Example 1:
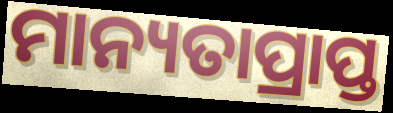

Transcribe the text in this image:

ମାନ୍ୟତାପ୍ରାପ୍ତ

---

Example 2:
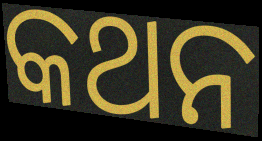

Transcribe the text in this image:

କଥନ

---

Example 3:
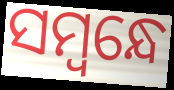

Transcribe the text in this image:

ସମ୍ବନ୍ଧେ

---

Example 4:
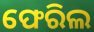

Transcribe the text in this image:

ଫେରିଲ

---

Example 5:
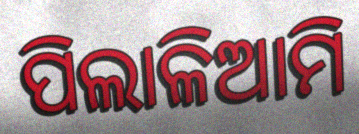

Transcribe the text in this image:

ପିଲାଳିଆମି